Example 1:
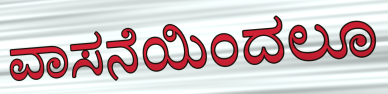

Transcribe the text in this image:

ವಾಸನೆಯಿಂದಲೂ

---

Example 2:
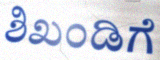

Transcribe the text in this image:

ಶಿಖಂಡಿಗೆ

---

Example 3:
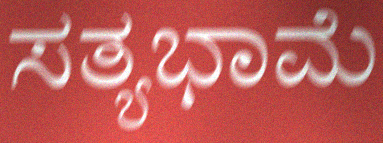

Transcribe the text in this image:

ಸತ್ಯಭಾಮೆ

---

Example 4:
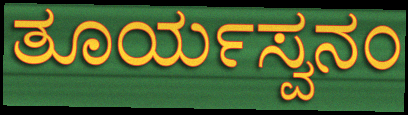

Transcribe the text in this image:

ತೂರ್ಯಸ್ವನಂ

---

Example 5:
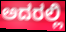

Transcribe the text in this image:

ಅದರಲ್ಲಿ